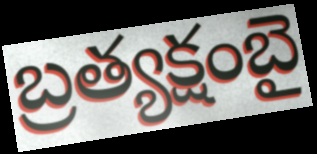
బ్రత్యక్షంబై